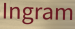
Ingram